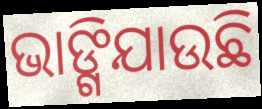
ଭାଙ୍ଗିଯାଉଛି